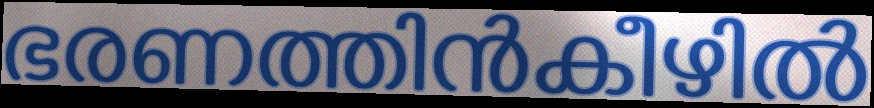
ഭരണത്തിൻകീഴിൽ